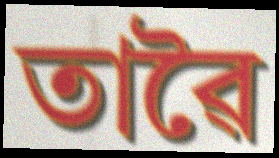
তাৱৈ